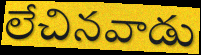
లేచినవాడు